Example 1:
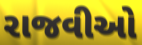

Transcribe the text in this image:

રાજવીઓ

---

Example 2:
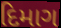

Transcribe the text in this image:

દિમાગ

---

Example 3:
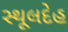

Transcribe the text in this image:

સ્થૂલદેહ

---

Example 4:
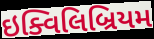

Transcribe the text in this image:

ઇક્વિલિબ્રિયમ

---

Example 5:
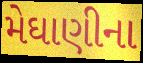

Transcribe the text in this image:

મેઘાણીના